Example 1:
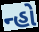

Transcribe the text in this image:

ન્હો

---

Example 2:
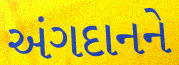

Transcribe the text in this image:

અંગદાનને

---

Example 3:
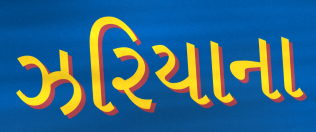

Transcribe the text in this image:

ઝરિયાના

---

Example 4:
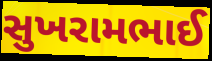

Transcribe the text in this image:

સુખરામભાઈ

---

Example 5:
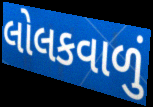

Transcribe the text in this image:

લોલકવાળું